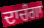
ਦਾਚੰਗਾ